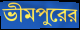
ভীমপুরের